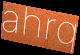
ahrq